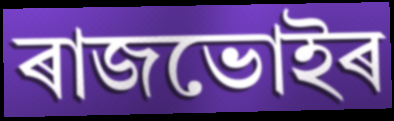
ৰাজভোইৰ